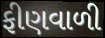
ફીણવાળી